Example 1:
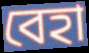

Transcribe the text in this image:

বেহা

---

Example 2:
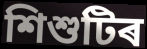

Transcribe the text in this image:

শিশুটিৰ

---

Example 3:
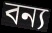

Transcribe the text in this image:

বন্য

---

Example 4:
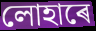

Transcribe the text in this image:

লোহাৰে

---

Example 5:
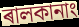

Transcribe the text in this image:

ৰালকানাং